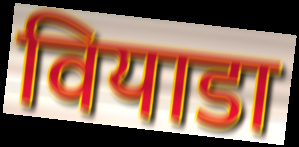
वियाडा